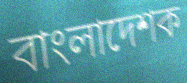
বাংলাদেশক